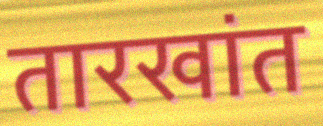
तारखांत